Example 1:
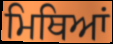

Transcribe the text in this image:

ਮਿਥਿਆਂ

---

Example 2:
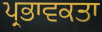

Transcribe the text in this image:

ਪ੍ਰਭਾਵਕਤਾ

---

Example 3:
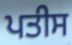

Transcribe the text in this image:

ਪਤੀਸ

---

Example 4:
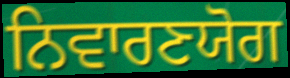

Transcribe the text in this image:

ਨਿਵਾਰਣਯੋਗ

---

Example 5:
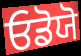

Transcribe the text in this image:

ਓਡੋਯੋ